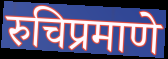
रुचिप्रमाणे